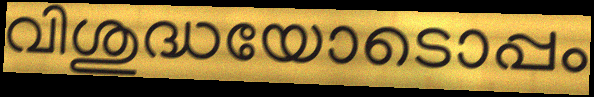
വിശുദ്ധയോടൊപ്പം